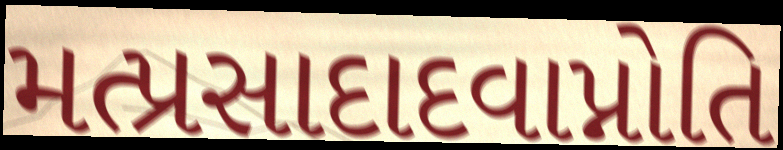
મત્પ્રસાદાદવાપ્નોતિ